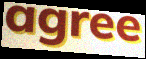
agree